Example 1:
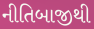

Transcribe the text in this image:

નીતિબાજીથી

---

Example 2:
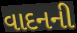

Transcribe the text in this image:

વાદનની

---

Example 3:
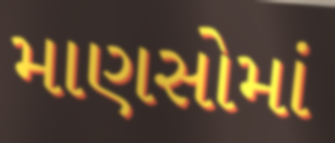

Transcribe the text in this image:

માણસોમાં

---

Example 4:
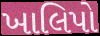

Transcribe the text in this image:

ખાલિપો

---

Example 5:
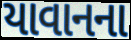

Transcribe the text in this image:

યાવાનના